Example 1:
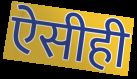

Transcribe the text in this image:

ऐसीही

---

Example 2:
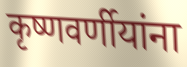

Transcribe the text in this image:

कृष्णवर्णीयांना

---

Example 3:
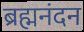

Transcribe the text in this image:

ब्रह्मनंदन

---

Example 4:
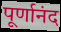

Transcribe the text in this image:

पूर्णानंद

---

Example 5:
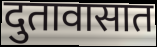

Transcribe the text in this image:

दुतावासात